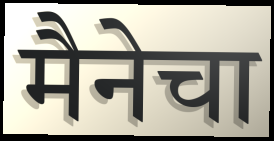
मैनेचा